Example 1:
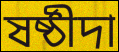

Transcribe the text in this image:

ষষ্ঠীদা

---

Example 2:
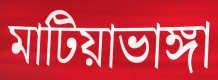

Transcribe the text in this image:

মাটিয়াভাঙ্গা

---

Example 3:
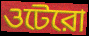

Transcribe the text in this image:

ওটেরো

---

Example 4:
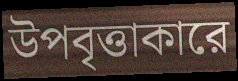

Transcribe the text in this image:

উপবৃত্তাকারে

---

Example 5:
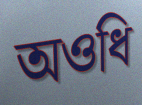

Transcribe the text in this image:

অওধি